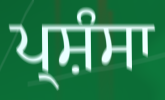
ਪ੍ਸ਼ੰਸਾ